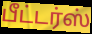
பீட்டர்ஸ்